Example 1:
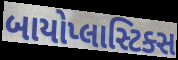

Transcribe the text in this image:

બાયોપ્લાસ્ટિક્સ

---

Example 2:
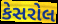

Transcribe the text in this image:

કેસરોલ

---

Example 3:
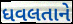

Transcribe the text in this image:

ધવલતાને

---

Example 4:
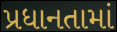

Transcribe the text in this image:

પ્રધાનતામાં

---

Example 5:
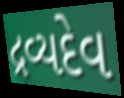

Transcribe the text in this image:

દ્રવ્યદેવ